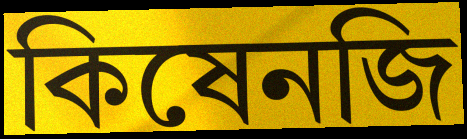
কিষেনজি